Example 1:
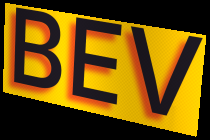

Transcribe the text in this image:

BEV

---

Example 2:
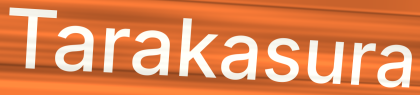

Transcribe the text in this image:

Tarakasura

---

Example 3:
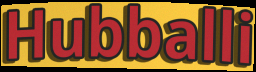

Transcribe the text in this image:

Hubballi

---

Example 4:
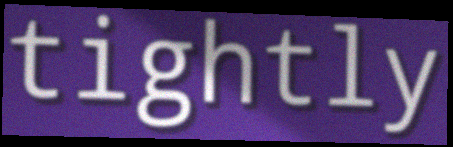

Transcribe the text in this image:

tightly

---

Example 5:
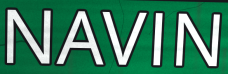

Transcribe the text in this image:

NAVIN